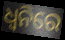
ଧ୍ୱନିରେ